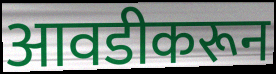
आवडीकरून